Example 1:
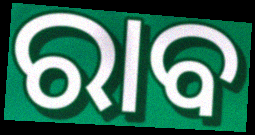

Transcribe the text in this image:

ରାବ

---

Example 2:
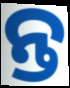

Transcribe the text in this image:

ନ୍ତ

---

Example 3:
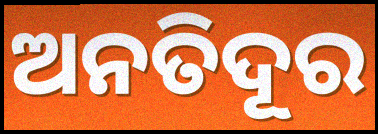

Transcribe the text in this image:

ଅନତିଦୂର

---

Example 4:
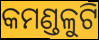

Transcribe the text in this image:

କମଣ୍ଡଳୁଟି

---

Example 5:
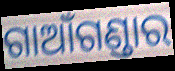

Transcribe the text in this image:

ଗାଆଁଗଣ୍ଡାର